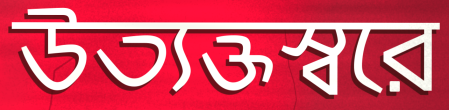
উত্যক্তস্বরে